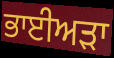
ਭਾਈਅੜਾ